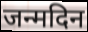
जन्मदिन